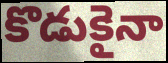
కొడుకైనా